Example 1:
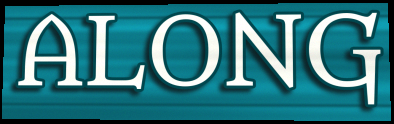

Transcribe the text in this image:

ALONG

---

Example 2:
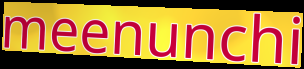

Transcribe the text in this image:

meenunchi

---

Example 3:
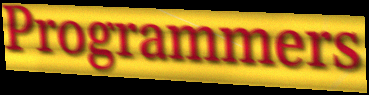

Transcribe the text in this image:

Programmers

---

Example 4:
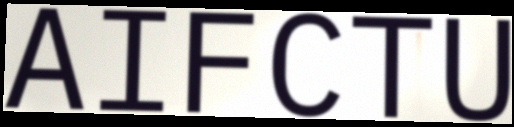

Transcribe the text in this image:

AIFCTU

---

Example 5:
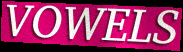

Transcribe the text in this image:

VOWELS